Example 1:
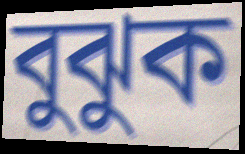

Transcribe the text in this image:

বুঝুক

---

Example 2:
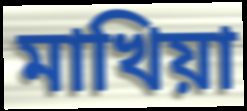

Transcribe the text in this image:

মাখিয়া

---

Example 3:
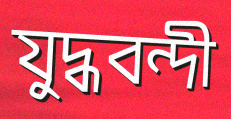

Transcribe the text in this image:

যুদ্ধবন্দী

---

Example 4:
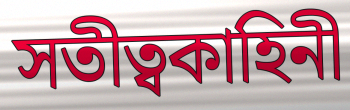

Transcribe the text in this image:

সতীত্বকাহিনী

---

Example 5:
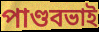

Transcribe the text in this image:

পাণ্ডবভাই